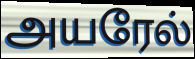
அயரேல்